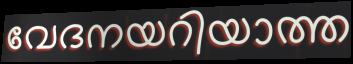
വേദനയറിയാത്ത